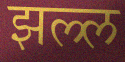
झल्ल